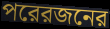
পরেরজনের